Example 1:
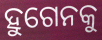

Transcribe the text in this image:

ହୁଗେନକୁ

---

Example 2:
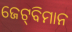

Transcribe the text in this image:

ଜେଟ୍‌ବିମାନ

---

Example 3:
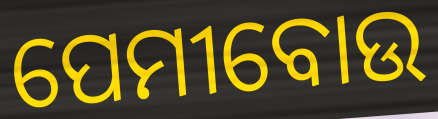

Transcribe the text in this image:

ପେମୀବୋଉ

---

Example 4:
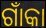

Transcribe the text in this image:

ଗାଁକା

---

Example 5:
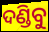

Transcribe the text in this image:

ଦଣ୍ଡିବୁ